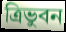
ত্রিভুবন